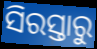
ସିରସ୍ତାରୁ